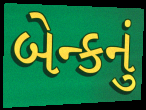
બેન્કનું